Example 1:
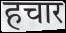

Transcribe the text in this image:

हचार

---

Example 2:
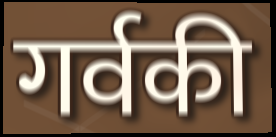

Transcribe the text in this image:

गर्वकी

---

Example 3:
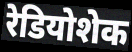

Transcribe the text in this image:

रेडियोशेक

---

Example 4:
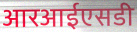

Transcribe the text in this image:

आरआईएसडी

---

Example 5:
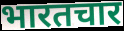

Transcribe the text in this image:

भारतचार